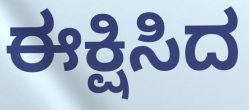
ಈಕ್ಷಿಸಿದ